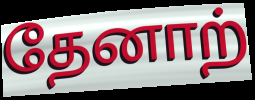
தேனாற்